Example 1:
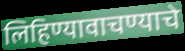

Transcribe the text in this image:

लिहिण्यावाचण्याचे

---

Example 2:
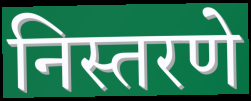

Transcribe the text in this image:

निस्तरणे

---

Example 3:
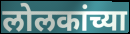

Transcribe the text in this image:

लोलकांच्या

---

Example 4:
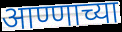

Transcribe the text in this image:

आण्णाच्या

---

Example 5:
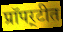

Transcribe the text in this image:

प्रॉपर्टीत